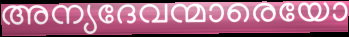
അന്യദേവന്മാരെയോ